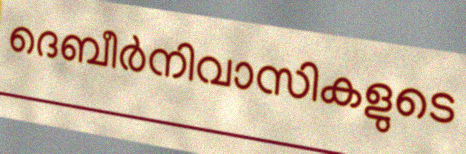
ദെബീർനിവാസികളുടെ